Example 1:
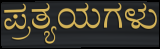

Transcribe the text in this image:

ಪ್ರತ್ಯಯಗಳು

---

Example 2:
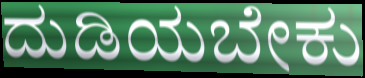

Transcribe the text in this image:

ದುಡಿಯಬೇಕು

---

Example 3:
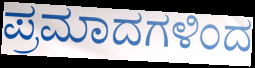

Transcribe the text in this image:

ಪ್ರಮಾದಗಳಿಂದ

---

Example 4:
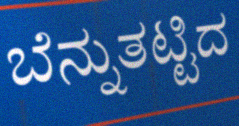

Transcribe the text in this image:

ಬೆನ್ನುತಟ್ಟಿದ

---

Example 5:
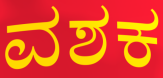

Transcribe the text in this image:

ವಶಕ